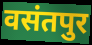
वसंतपुर